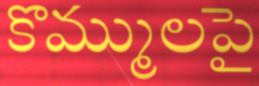
కొమ్ములపై